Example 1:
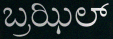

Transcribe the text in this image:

ಬ್ರಝಿಲ್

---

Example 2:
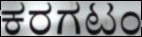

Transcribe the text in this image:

ಕರಗಟಂ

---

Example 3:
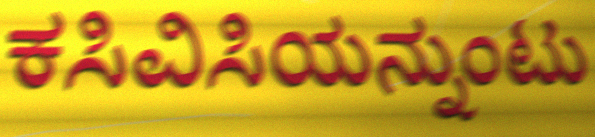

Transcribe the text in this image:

ಕಸಿವಿಸಿಯನ್ನುಂಟು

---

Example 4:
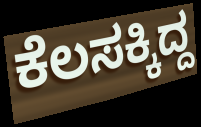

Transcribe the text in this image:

ಕೆಲಸಕ್ಕಿದ್ದ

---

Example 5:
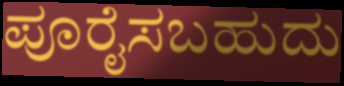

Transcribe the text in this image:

ಪೂರೈಸಬಹುದು